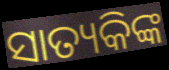
ସାତ୍ୟକିଙ୍କ